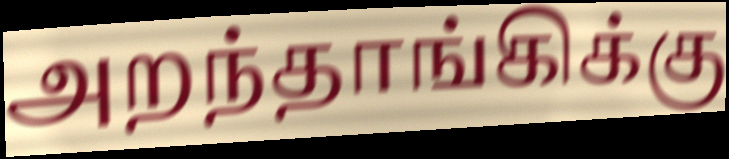
அறந்தாங்கிக்கு